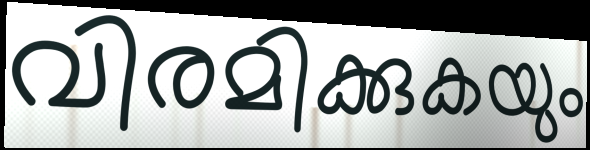
വിരമിക്കുകയും